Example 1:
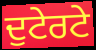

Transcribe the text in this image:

ਦੁਟੇਰਟੇ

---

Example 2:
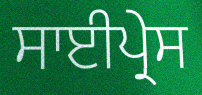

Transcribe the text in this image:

ਸਾਈਪ੍ਰੇਸ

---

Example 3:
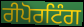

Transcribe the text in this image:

ਰੀਪੋਰਟਿੰਗ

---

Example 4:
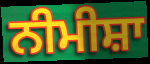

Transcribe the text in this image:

ਨੀਮੀਸ਼ਾ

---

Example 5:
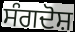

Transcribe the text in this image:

ਸੰਗਦੋਸ਼